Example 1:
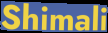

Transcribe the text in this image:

Shimali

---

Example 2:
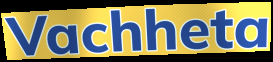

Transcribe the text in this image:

Vachheta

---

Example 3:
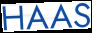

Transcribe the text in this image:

HAAS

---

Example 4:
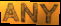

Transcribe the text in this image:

ANY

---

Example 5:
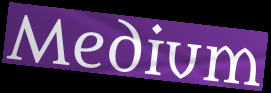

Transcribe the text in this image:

Medium